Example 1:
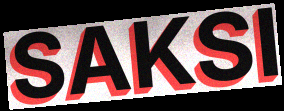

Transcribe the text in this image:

SAKSI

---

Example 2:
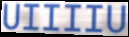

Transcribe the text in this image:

UIIIIU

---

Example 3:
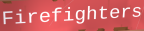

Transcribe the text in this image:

Firefighters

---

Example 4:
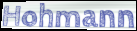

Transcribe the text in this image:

Hohmann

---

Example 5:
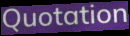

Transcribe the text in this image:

Quotation